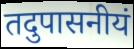
तदुपासनीयं